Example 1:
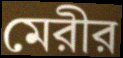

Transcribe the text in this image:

মেরীর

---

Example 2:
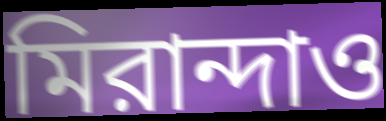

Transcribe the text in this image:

মিরান্দাও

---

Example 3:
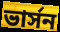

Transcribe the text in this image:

ভার্সন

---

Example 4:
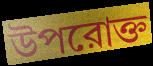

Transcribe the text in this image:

উপরোক্ত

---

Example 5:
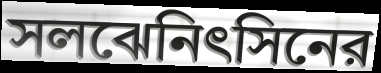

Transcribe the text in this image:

সলঝেনিৎসিনের